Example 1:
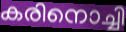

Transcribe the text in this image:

കരിനൊച്ചി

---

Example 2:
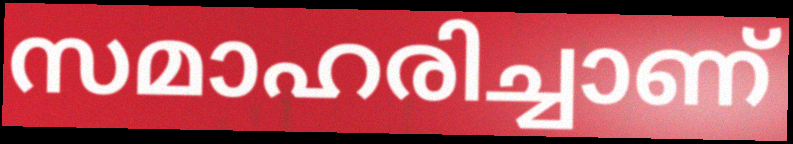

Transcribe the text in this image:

സമാഹരിച്ചാണ്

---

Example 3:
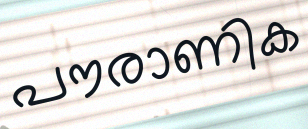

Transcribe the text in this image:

പൗരാണിക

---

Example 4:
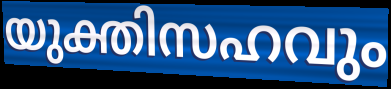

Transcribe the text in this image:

യുക്തിസഹവും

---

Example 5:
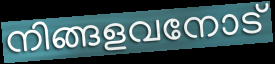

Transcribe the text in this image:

നിങ്ങളവനോട്